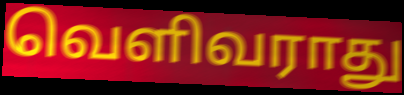
வெளிவராது